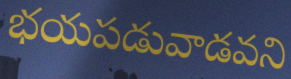
భయపడువాడవని